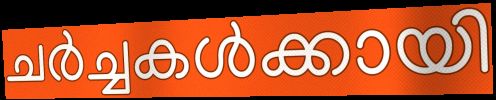
ചർച്ചകൾക്കായി